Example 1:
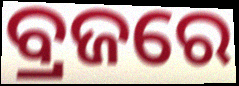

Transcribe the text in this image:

ବ୍ରଜରେ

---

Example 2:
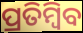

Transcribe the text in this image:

ପ୍ରତିମ୍ବିବ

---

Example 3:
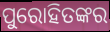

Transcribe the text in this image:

ପୁରୋହିତଙ୍କର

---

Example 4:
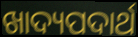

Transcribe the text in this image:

ଖାଦ୍ୟପଦାର୍ଥ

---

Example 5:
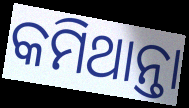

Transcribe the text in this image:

କମିଥାନ୍ତା